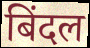
बिंदल